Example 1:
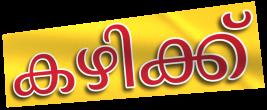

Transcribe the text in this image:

കഴിക്ക്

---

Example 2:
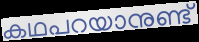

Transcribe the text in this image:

കഥപറയാനുണ്ട്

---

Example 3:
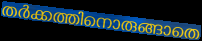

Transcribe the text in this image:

തർക്കത്തിനൊരുങ്ങാതെ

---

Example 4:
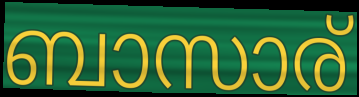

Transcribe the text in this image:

ബാസാര്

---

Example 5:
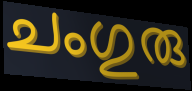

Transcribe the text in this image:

ചംഗുരു